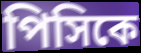
পিসিকে